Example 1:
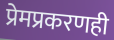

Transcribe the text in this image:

प्रेमप्रकरणही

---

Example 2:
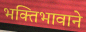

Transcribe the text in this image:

भक्तिभावाने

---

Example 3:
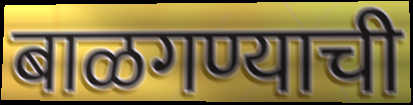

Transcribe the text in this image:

बाळगण्याची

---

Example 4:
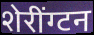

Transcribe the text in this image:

शेरींग्टन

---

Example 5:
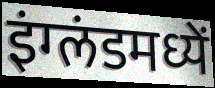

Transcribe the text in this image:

इंग्लंडमध्यें